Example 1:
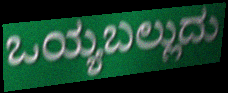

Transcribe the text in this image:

ಒಯ್ಯಬಲ್ಲುದು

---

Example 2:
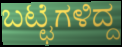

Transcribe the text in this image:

ಬಟ್ಟೆಗಳಿದ್ದ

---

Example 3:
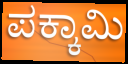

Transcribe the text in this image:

ಪಕ್ಕಾಮಿ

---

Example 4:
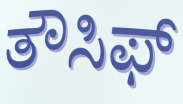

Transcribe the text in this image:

ತೌಸಿಫ್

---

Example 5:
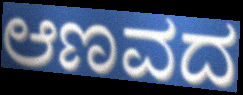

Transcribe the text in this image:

ಆಣವದ